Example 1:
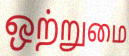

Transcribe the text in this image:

ஒற்றுமை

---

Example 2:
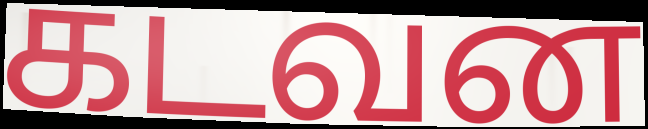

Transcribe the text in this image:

கடவன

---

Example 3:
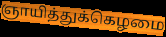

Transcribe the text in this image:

ஞாயித்துக்கெழமை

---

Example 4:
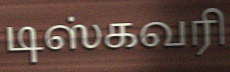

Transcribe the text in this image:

டிஸ்கவரி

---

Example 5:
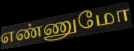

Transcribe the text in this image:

எண்ணுமோ